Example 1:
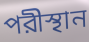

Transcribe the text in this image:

পরীস্থান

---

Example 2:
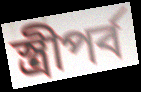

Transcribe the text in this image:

স্ত্রীপর্ব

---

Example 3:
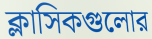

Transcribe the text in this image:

ক্লাসিকগুলোর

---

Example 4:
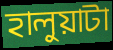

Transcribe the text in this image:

হালুয়াটা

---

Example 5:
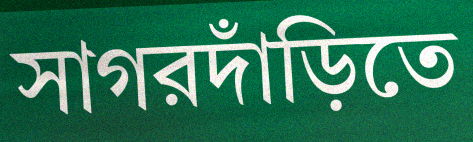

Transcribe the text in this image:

সাগরদাঁড়িতে